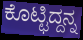
ಕೊಟ್ಟಿದ್ದನ್ನ